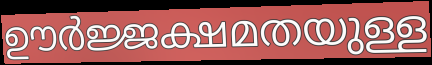
ഊർജ്ജക്ഷമതയുള്ള